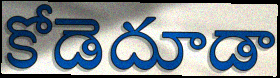
కోడెదూడా